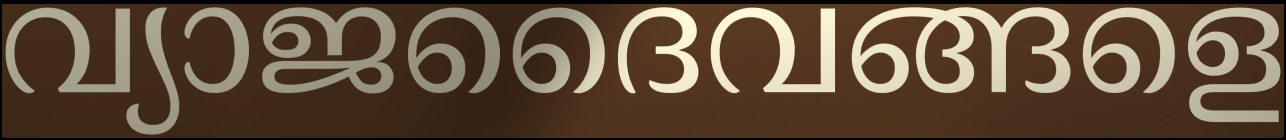
വ്യാജദൈവങ്ങളെ